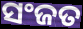
ସଂଜତ